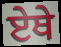
ਏਥੇ